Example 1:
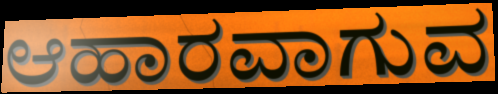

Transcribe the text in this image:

ಆಹಾರವಾಗುವ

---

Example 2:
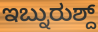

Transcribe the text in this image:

ಇಬ್ನುರುಶ್ದ್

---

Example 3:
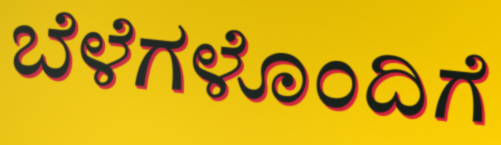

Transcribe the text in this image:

ಬೆಳೆಗಳೊಂದಿಗೆ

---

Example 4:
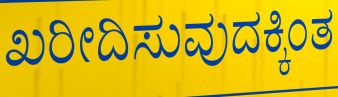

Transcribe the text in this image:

ಖರೀದಿಸುವುದಕ್ಕಿಂತ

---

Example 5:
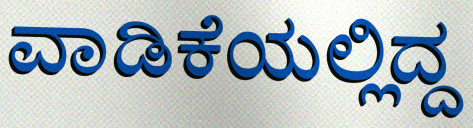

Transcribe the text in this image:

ವಾಡಿಕೆಯಲ್ಲಿದ್ದ